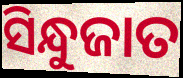
ସିନ୍ଧୁଜାତ